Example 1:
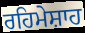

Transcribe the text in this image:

ਰਹਿਮੇਸ਼ਾਹ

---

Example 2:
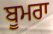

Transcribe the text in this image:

ਬੂਮਰਾ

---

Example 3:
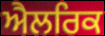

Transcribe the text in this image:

ਐਲਰਿਕ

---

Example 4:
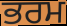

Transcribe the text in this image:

ਭਰਮ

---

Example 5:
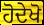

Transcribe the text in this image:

ਹੋਦੇਖੋ